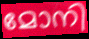
മോനി